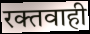
रक्तवाही